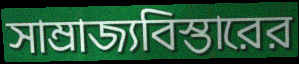
সাম্রাজ্যবিস্তারের